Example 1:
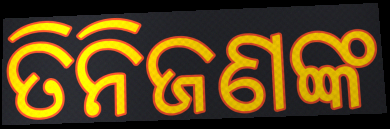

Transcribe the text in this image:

ତିନିଜଣଙ୍କ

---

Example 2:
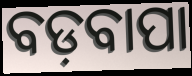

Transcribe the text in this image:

ବଡ଼ବାପା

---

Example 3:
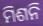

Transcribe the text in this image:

ମିଶନି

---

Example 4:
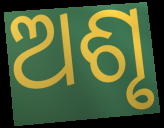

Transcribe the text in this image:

ଅଶୃ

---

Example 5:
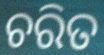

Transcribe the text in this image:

ଚରିତ